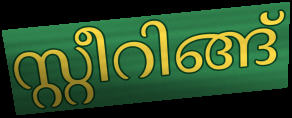
സ്റ്റീറിങ്ങ്